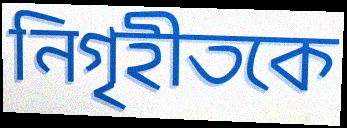
নিগৃহীতকে